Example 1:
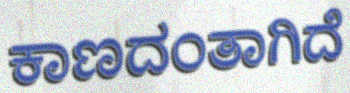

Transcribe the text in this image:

ಕಾಣದಂತಾಗಿದೆ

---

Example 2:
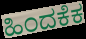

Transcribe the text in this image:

ಹಿಂದಕೆಕ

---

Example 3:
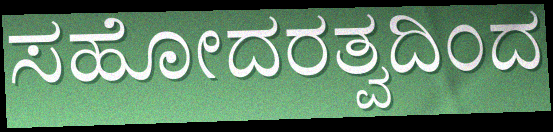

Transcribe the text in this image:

ಸಹೋದರತ್ವದಿಂದ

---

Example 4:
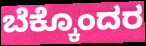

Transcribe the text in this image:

ಬೆಕ್ಕೊಂದರ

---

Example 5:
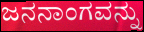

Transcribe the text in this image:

ಜನನಾಂಗವನ್ನು